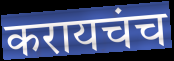
करायचंच